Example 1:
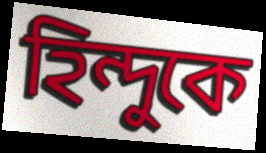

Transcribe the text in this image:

হিন্দুকে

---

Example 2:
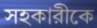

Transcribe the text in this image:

সহকারীকে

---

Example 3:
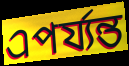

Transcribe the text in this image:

এপর্য্যন্ত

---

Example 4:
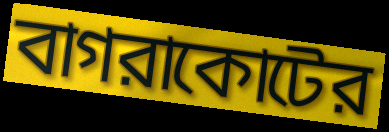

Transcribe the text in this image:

বাগরাকোটের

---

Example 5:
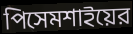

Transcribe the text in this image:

পিসেমশাইয়ের